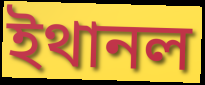
ইথানল